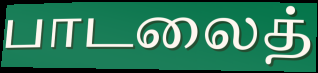
பாடலைத்